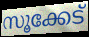
സൂക്കേട്